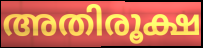
അതിരൂക്ഷ